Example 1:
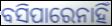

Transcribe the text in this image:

ବସିପାରେନାହିଁ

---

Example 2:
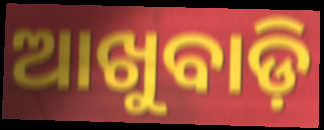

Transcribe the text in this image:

ଆଖୁବାଡ଼ି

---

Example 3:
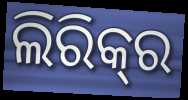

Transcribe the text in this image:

ଲିରିକ୍‍ର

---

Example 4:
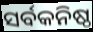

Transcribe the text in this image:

ସର୍ବକନିଷ୍ଠ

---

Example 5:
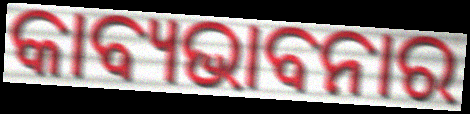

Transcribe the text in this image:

କାବ୍ୟଭାବନାର